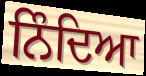
ਨਿੰਦਿਆ